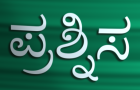
ಪ್ರಶ್ನಿಸ